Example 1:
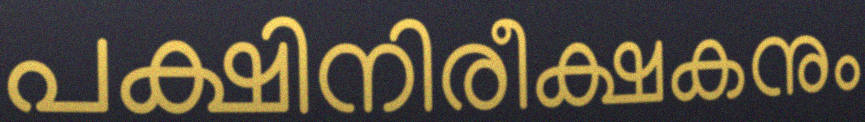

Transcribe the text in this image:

പക്ഷിനിരീക്ഷകനും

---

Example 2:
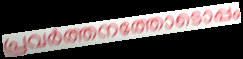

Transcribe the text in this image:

പ്രവർത്തനത്തോടൊപ്പം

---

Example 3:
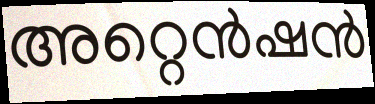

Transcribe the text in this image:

അറ്റെൻഷൻ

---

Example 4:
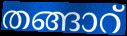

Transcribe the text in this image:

തങ്ങാറ്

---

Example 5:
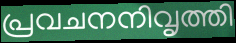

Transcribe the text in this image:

പ്രവചനനിവൃത്തി